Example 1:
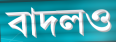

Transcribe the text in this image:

বাদলও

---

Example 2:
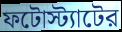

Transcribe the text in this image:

ফটোস্ট্যাটের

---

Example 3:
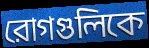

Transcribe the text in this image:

রোগগুলিকে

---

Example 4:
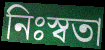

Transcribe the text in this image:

নিঃস্বতা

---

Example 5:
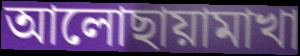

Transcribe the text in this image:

আলোছায়ামাখা